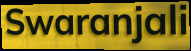
Swaranjali